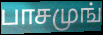
பாசமுங்